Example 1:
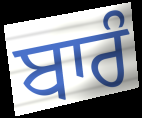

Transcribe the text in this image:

ਬਾਰੰ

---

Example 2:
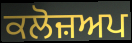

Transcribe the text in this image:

ਕਲੋਜ਼ਅਪ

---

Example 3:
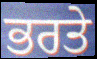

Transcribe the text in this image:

ਭਰਤੇ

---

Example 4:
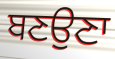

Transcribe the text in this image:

ਬਣਉਣਾ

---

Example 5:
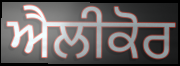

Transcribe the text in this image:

ਐਲੀਕੋਰ